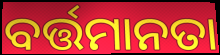
ବର୍ତ୍ତମାନତା